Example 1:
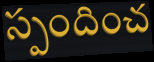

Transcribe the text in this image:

స్పందించ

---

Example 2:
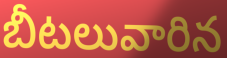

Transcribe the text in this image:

బీటలువారిన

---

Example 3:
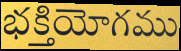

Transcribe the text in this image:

భక్తియోగము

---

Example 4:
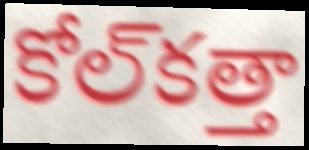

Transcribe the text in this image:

కోల్‌కత్తా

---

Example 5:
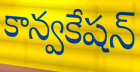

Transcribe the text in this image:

కాన్వకేషన్